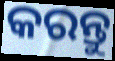
କରନ୍ତୁ